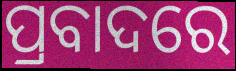
ପ୍ରବାଦରେ